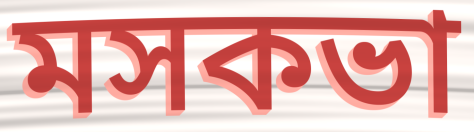
মসকভা